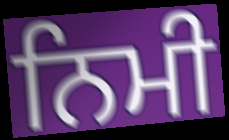
ਨਿਮੀ